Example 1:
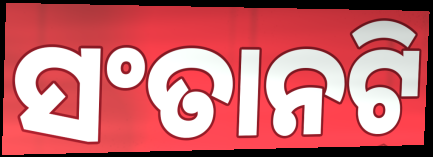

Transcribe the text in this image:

ସଂତାନଟି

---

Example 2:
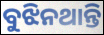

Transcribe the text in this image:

ବୁଝିନଥାନ୍ତି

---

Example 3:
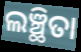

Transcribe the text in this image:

ଲଞ୍ଛିତା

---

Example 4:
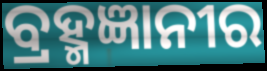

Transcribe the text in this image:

ବ୍ରହ୍ମଜ୍ଞାନୀର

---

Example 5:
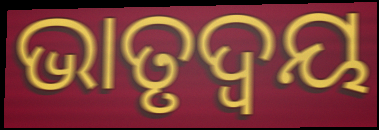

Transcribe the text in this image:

ଭାତୃଦ୍ବୟ